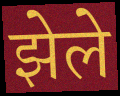
झेले